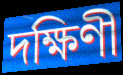
দক্ষিণী